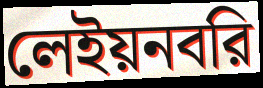
লেইয়নবরি